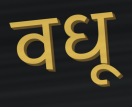
वधू